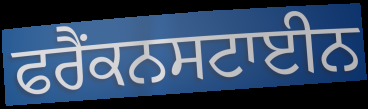
ਫਰੈਂਕਨਸਟਾਈਨ